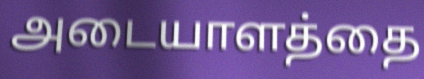
அடையாளத்தை